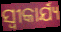
ସ୍ୱୀକାର୍ଯ୍ୟ